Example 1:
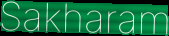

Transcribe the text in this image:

Sakharam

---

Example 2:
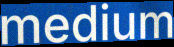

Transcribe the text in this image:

medium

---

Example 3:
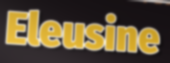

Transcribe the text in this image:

Eleusine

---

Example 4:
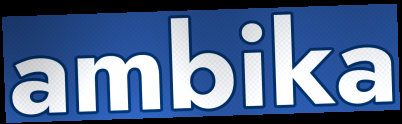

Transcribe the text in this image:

ambika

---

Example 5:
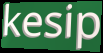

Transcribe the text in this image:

kesip